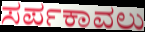
ಸರ್ಪಕಾವಲು